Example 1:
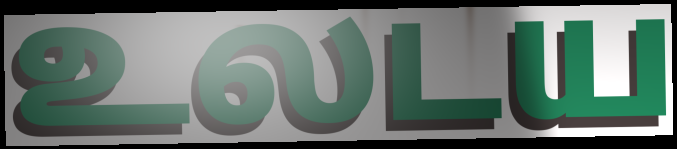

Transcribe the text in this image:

உலடய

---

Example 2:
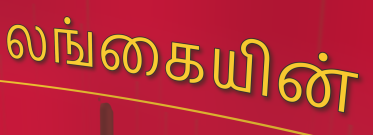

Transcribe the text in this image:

லங்கையின்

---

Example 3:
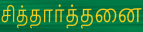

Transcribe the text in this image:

சித்தார்த்தனை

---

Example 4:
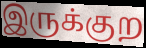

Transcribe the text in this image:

இருக்குற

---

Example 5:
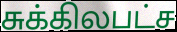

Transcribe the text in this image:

சுக்கிலபட்ச